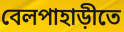
বেলপাহাড়ীতে